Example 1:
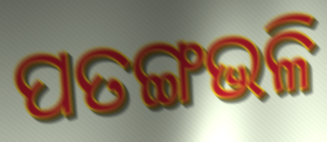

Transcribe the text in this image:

ପତଙ୍ଗଭଳି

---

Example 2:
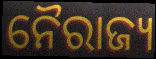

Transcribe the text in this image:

ନୈରାଜ୍ୟ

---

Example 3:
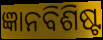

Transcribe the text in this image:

ଜ୍ଞାନବିଶିଷ୍ଟ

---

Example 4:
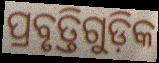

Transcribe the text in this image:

ପ୍ରବୃତ୍ତିଗୁଡ଼ିକ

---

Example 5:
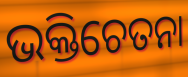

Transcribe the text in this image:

ଭକ୍ତିଚେତନା